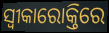
ସ୍ଵୀକାରୋକ୍ତିରେ